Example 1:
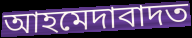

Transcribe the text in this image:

আহমেদাবাদত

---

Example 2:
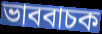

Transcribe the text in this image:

ভাববাচক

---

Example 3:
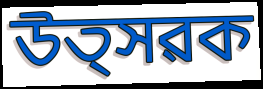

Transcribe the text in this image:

উত্সৱক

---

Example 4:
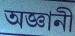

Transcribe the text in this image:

অজ্ঞানী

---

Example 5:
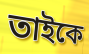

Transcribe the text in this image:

তাইকে